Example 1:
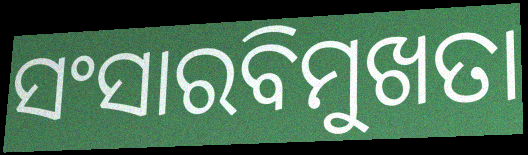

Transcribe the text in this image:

ସଂସାରବିମୁଖତା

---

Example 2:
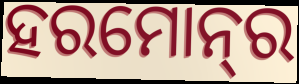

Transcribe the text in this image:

ହରମୋନ୍‍ର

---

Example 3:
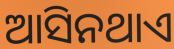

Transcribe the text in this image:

ଆସିନଥାଏ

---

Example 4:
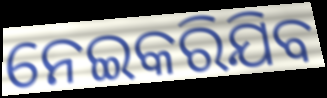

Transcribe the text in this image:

ନେଇକରିଯିବ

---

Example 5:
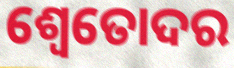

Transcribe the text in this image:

ଶ୍ୱେତୋଦର